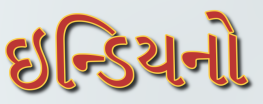
ઇન્ડિયનો